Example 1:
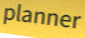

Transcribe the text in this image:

planner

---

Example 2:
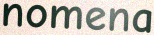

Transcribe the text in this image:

nomena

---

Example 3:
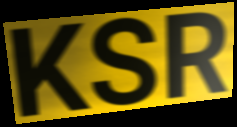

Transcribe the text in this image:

KSR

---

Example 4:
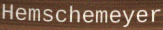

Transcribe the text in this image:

Hemschemeyer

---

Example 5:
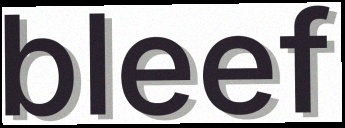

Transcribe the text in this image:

bleef